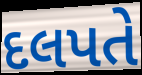
દલપતે